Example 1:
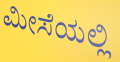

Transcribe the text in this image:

ಮೀಸೆಯಲ್ಲಿ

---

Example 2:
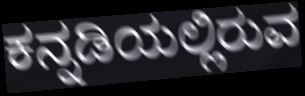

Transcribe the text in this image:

ಕನ್ನಡಿಯಲ್ಲಿರುವ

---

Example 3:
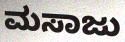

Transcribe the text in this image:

ಮಸಾಜು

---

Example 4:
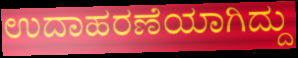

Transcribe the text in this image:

ಉದಾಹರಣೆಯಾಗಿದ್ದು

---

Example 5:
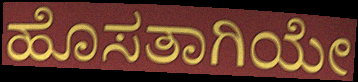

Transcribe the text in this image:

ಹೊಸತಾಗಿಯೇ